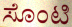
ಸೊಂಟಿ